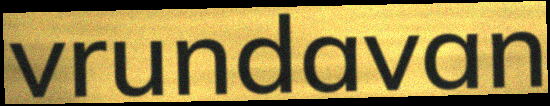
vrundavan